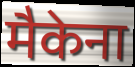
मैकेना